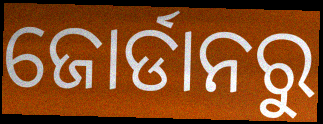
ଜୋର୍ଡାନରୁ